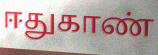
ஈதுகாண்